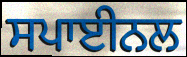
ਸਪਾਈਨਲ